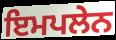
ਇਮਪਲੇਨ